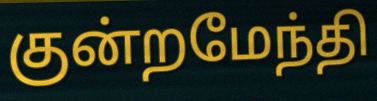
குன்றமேந்தி